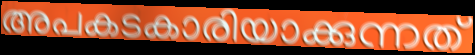
അപകടകാരിയാക്കുന്നത്